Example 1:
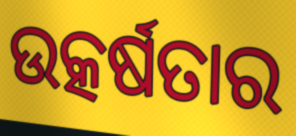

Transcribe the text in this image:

ଉତ୍କର୍ଷତାର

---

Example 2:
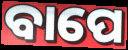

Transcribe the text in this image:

ବାପେ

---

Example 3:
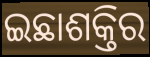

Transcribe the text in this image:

ଇଛାଶକ୍ତିର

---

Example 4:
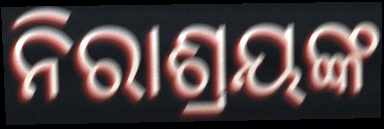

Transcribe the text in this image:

ନିରାଶ୍ରୟଙ୍କ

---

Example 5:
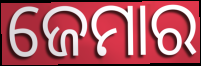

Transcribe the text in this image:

ଜେମାର